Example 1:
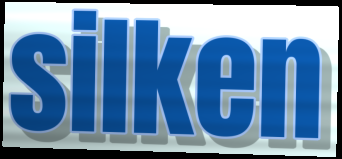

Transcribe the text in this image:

silken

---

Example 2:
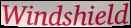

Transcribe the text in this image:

Windshield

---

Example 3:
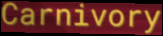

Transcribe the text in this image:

Carnivory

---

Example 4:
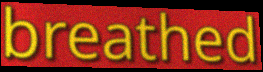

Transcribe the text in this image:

breathed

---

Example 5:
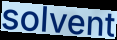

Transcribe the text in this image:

solvent